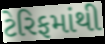
ટેરિફમાંથી